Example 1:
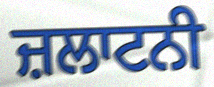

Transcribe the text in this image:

ਜ਼ਲਾਟਨੀ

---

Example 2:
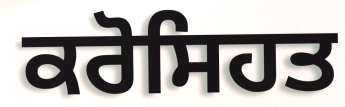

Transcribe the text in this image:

ਕਰੋਸਿਹਤ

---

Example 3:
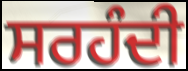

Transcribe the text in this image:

ਸਰਹੰਦੀ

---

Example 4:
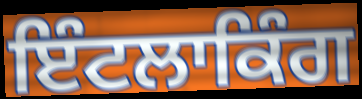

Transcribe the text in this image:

ਇੰਟਲਾਕਿੰਗ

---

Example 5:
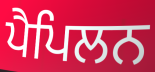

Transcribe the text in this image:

ਪੈਪਿਲਨ